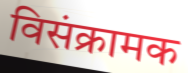
विसंक्रामक